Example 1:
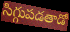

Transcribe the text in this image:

సిగ్గుపడతాడో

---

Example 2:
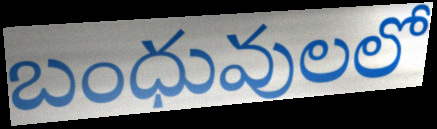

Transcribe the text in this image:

బంధువులలో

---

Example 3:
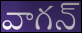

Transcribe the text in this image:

వాగన్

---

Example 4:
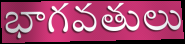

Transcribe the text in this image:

భాగవతులు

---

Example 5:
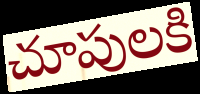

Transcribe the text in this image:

చూపులకి